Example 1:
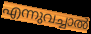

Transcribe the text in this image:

എന്നുവച്ചാൽ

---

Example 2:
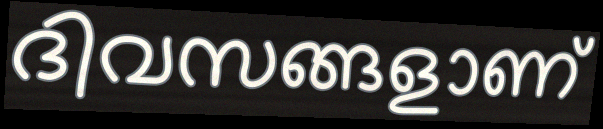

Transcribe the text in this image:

ദിവസങ്ങളാണ്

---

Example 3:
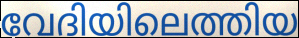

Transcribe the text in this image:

വേദിയിലെത്തിയ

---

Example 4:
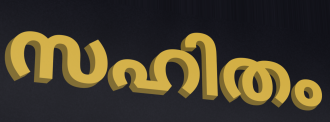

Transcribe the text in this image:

സഹിതം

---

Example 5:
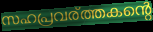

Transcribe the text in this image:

സഹപ്രവര്ത്തകന്റെ